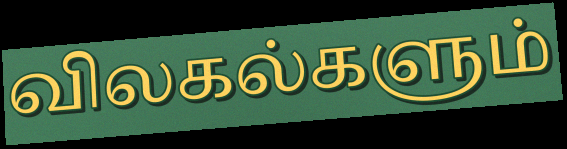
விலகல்களும்